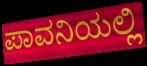
ಪಾವನಿಯಲ್ಲಿ